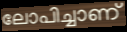
ലോപിച്ചാണ്